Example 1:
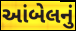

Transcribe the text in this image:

આંબેલનું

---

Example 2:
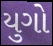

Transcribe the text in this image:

યુગો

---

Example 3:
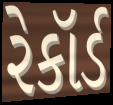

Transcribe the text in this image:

રેકૉર્ડ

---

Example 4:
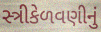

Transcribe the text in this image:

સ્ત્રીકેળવણીનું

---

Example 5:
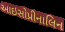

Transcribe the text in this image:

આઇસોપ્રીનાલિન